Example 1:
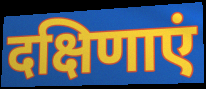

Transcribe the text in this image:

दक्षिणाएं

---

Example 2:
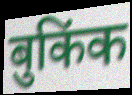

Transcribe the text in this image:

बुकिंक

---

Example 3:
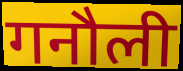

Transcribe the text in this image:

गनौली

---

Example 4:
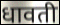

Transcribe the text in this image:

धावती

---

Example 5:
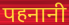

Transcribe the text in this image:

पहनानी